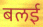
बलई